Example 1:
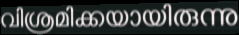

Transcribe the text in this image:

വിശ്രമിക്കയായിരുന്നു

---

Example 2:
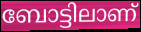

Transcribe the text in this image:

ബോട്ടിലാണ്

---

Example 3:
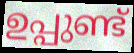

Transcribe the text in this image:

ഉപ്പുണ്ട്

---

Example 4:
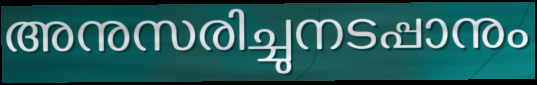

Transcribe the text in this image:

അനുസരിച്ചുനടപ്പാനും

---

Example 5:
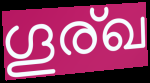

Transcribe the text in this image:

ഗൂര്ഖ